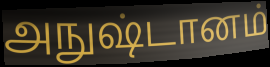
அநுஷ்டானம்